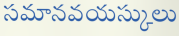
సమానవయస్కులు